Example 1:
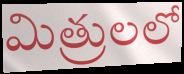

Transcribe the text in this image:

మిత్రులలో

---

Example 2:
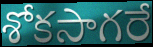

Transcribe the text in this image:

శోకసాగరే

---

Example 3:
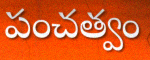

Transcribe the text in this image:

పంచత్వం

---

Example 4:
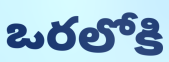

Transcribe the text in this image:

ఒరలోకి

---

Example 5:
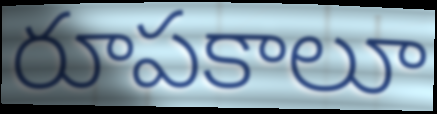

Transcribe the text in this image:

రూపకాలూ